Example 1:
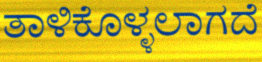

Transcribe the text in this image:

ತಾಳಿಕೊಳ್ಳಲಾಗದೆ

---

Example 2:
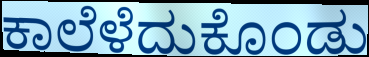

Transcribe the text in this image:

ಕಾಲೆಳೆದುಕೊಂಡು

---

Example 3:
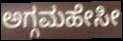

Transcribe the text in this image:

ಅಗ್ಗಮಹೇಸೀ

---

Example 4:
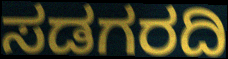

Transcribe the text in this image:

ಸಡಗರದಿ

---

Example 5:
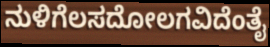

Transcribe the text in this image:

ನುಳಿಗೆಲಸದೋಲಗವಿದೆಂತೈ